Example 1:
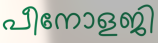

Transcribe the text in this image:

പീനോളജി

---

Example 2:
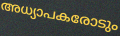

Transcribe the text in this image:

അധ്യാപകരോടും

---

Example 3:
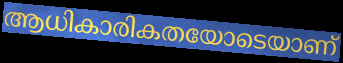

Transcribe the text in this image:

ആധികാരികതയോടെയാണ്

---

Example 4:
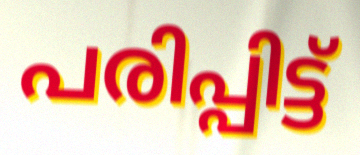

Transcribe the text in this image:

പരിപ്പിട്ട്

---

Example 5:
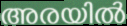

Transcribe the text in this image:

അരയിൽ